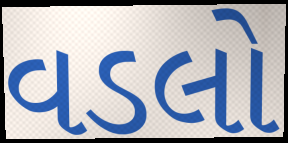
વડલો